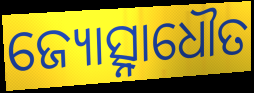
ଜ୍ୟୋତ୍ସ୍ନାଧୌତ